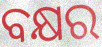
ବକ୍ଷର